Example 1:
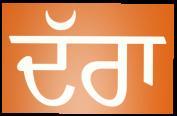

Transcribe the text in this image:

ਦੱਰਾ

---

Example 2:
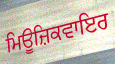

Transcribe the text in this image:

ਮਿਊਜ਼ਿਕਵਾਇਰ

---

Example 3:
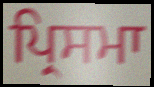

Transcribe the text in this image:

ਪ੍ਰਿਸਮਾ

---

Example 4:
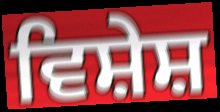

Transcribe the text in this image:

ਵਿਸ਼ੇਸ਼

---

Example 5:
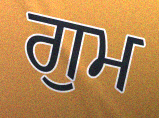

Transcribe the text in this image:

ਗੁਮ